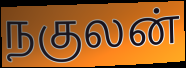
நகுலன்